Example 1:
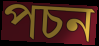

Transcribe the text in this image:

পচন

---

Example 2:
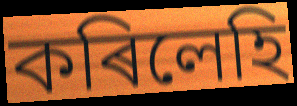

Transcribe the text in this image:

কৰিলেহি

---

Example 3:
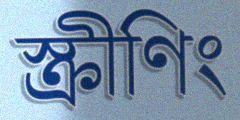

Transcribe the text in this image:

স্ক্ৰীণিং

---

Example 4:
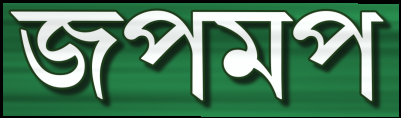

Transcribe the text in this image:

জপমপ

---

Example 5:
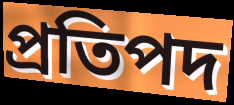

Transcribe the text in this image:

প্ৰতিপদ